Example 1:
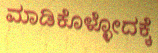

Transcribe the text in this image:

ಮಾಡಿಕೊಳ್ಳೋದಕ್ಕೆ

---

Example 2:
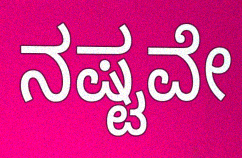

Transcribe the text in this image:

ನಷ್ಟವೇ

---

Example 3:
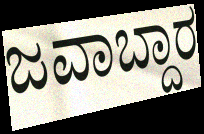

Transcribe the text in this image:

ಜವಾಬ್ದಾರ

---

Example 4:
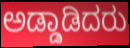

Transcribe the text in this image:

ಅಡ್ಡಾಡಿದರು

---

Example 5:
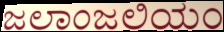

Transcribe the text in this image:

ಜಲಾಂಜಲಿಯಂ